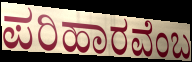
ಪರಿಹಾರವೆಂಬ